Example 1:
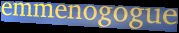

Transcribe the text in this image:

emmenogogue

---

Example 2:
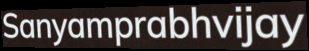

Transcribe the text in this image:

Sanyamprabhvijay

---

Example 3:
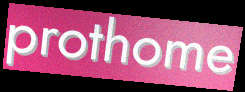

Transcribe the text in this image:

prothome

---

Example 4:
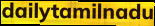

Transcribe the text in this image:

dailytamilnadu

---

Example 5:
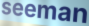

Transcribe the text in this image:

seeman